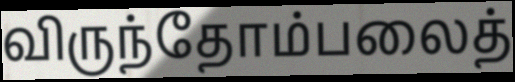
விருந்தோம்பலைத்